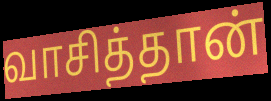
வாசித்தான்